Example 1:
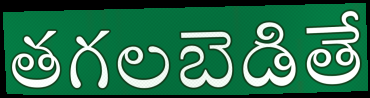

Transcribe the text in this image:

తగలబెడితే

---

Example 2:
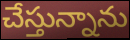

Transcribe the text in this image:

చేస్తున్నాను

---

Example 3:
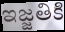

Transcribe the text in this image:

ఇజ్జతికి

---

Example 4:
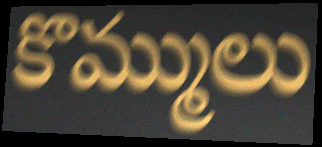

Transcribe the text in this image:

కొమ్ములు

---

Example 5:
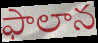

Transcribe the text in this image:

ఫాలాన